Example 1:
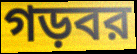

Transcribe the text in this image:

গড়বর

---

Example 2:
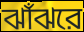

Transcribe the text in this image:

ঝাঁঝরে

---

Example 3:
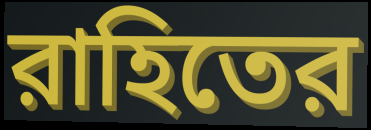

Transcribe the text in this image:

রাহিতের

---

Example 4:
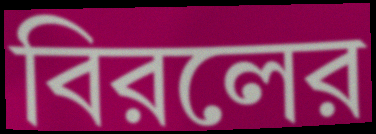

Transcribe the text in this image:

বিরলের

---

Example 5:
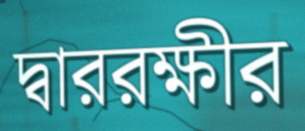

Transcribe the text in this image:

দ্বাররক্ষীর